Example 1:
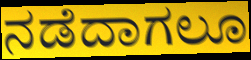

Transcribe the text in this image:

ನಡೆದಾಗಲೂ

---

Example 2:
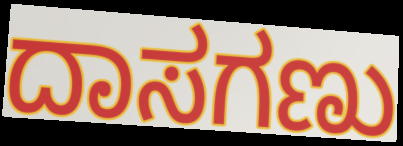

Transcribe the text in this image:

ದಾಸಗಣು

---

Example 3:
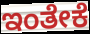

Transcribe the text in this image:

ಇಂತೇಕೆ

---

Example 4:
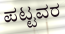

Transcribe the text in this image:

ಪಟ್ಟವರ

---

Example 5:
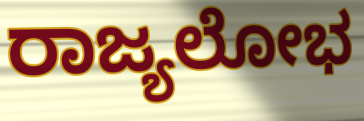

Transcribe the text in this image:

ರಾಜ್ಯಲೋಭ